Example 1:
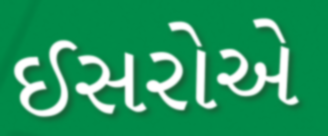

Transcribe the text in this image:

ઈસરોએ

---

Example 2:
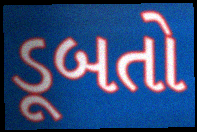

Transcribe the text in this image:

ડૂબતો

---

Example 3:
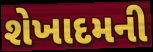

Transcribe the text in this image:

શેખાદમની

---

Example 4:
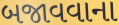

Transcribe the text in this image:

બજાવવાના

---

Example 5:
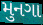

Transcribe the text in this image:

મુનગા